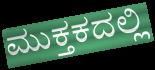
ಮುಕ್ತಕದಲ್ಲಿ